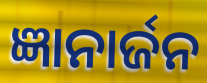
ଜ୍ଞାନାର୍ଜନ